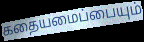
கதையமைப்பையும்